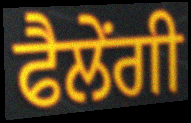
ਫੈਲੇਂਗੀ